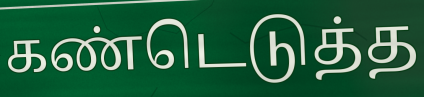
கண்டெடுத்த